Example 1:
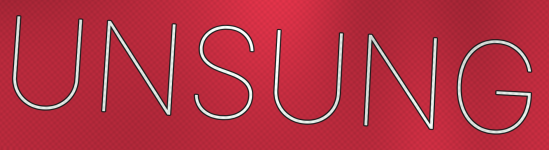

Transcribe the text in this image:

UNSUNG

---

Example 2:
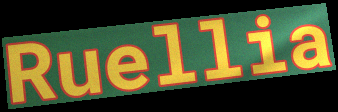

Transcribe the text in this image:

Ruellia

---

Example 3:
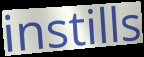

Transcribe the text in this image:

instills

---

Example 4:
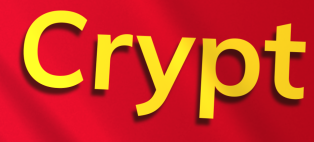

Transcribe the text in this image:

Crypt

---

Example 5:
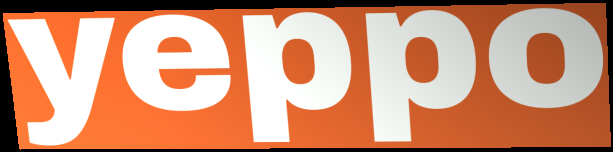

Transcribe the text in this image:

yeppo